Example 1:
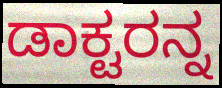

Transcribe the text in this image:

ಡಾಕ್ಟರನ್ನ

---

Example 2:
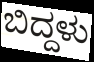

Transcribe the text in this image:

ಬಿದ್ದಳು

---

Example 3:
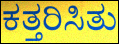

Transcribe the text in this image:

ಕತ್ತರಿಸಿತು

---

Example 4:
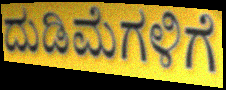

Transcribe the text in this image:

ದುಡಿಮೆಗಳಿಗೆ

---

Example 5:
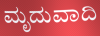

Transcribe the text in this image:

ಮೃದುವಾದಿ